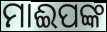
ମାଈପଙ୍କ